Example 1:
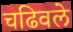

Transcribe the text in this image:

चढिवले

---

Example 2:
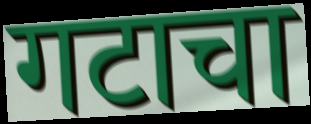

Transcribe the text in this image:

गटाचा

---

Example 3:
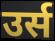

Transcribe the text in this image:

उर्स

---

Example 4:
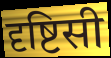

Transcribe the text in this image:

दृष्टिसी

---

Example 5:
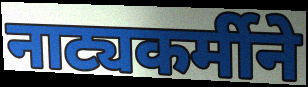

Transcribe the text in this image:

नाट्यकर्मीने